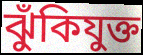
ঝুঁকিযুক্ত